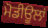
ਮੋਡੀਊਲਾਂ